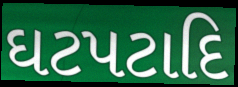
ઘટપટાદિ